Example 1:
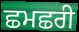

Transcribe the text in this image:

ਛਮਛਰੀ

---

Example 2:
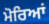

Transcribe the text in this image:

ਮੋਰਿਆਂ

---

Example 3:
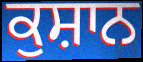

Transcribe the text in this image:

ਕੁਸ਼ਾਨ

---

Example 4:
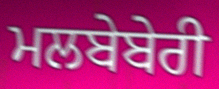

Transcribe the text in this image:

ਮਲਬੇਬੇਰੀ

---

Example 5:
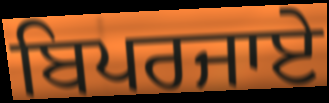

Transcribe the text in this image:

ਬਿਪਰਜਾਏ